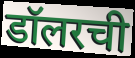
डॉलरची